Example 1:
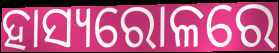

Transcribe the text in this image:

ହାସ୍ୟରୋଳରେ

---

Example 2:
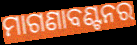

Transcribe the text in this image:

ମାଗଣାବଣ୍ଟନର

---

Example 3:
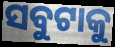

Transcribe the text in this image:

ସବୁଟାକୁ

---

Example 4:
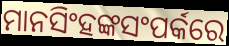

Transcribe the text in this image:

ମାନସିଂହଙ୍କସଂପର୍କରେ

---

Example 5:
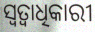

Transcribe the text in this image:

ସ୍ବତ୍ବାଧିକାରୀ